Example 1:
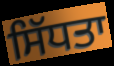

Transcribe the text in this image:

ਸਿੱਧਤਾ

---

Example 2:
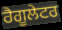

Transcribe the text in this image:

ਰੈਗੂਲੇਟਰ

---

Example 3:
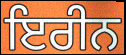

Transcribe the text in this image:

ਇਰੀਨ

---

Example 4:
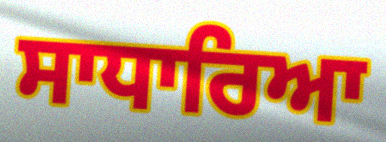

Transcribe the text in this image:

ਸਾਧਾਰਿਆ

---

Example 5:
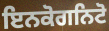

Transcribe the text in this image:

ਇਨਕੋਗਨਿਟੋ